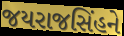
જયરાજસિંહને